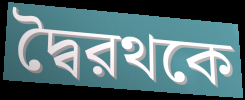
দ্বৈরথকে